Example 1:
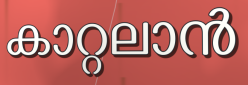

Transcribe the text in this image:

കാറ്റലാൻ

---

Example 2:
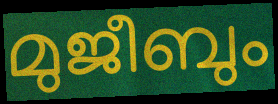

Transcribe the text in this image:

മുജീബും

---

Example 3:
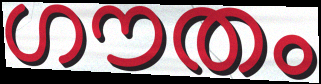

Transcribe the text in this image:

ഗൗതം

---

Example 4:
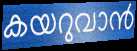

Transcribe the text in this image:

കയറുവാൻ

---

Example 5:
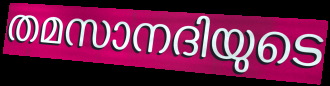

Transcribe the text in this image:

തമസാനദിയുടെ